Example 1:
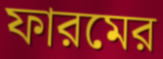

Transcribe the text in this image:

ফারমের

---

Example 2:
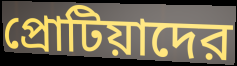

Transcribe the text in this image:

প্রোটিয়াদের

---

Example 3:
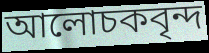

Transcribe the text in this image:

আলোচকবৃন্দ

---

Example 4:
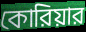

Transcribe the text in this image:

কোরিয়ার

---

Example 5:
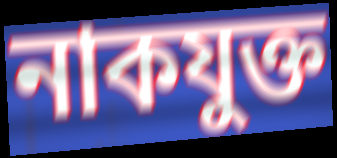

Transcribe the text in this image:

নাকযুক্ত